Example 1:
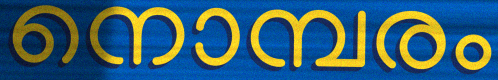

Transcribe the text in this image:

നൊമ്പരം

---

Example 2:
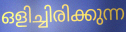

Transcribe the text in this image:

ഒളിച്ചിരിക്കുന്ന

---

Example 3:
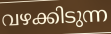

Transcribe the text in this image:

വഴക്കിടുന്ന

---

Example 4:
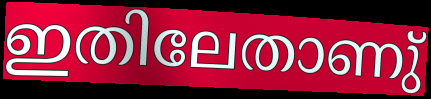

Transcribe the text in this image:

ഇതിലേതാണു്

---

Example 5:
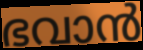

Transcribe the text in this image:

ഭവാൻ